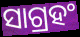
ସାଗ୍ରହଂ